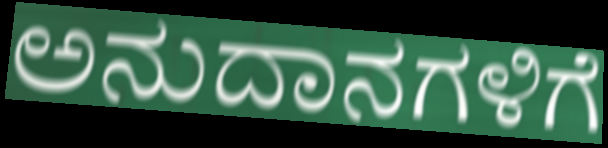
ಅನುದಾನಗಳಿಗೆ